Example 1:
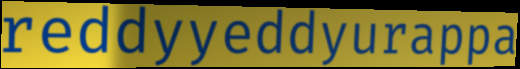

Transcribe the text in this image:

reddyyeddyurappa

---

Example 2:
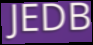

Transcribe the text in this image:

JEDB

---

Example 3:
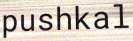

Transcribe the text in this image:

pushkal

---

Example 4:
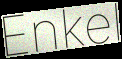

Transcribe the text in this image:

Enkel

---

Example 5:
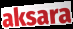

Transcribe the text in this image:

aksara